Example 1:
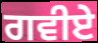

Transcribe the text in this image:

ਗਵੀਏ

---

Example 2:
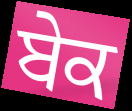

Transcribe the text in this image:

ਬੇਕ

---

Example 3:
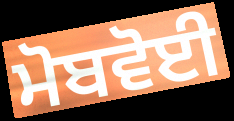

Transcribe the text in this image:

ਮੋਬਵੋਈ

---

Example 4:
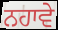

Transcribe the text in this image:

ਨਹਾਵੇ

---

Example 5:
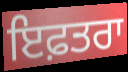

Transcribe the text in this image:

ਇਫ਼ਤਰਾ